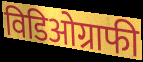
विडिओग्राफी